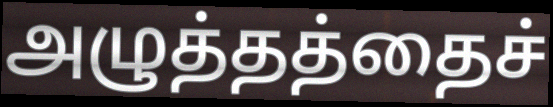
அழுத்தத்தைச்